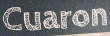
Cuaron